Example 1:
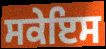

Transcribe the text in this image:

ਸਕੇਇਸ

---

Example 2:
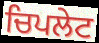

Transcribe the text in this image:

ਚਿਪਲੇਟ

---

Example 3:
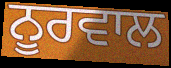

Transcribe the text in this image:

ਨੂਰਵਾਲ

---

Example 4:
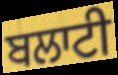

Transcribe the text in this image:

ਬਲਾਟੀ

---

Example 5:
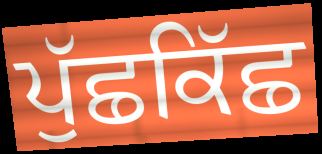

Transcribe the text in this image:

ਪੁੱਛਕਿੱਛ